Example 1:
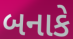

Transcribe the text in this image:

બનાકે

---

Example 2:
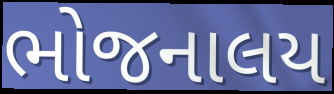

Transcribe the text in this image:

ભોજનાલય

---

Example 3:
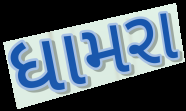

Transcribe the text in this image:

ધામરા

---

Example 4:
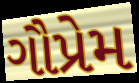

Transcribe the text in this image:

ગૌપ્રેમ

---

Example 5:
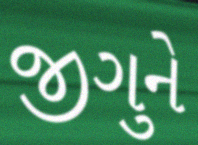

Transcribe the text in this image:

જીગુને